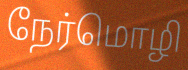
நேர்மொழி